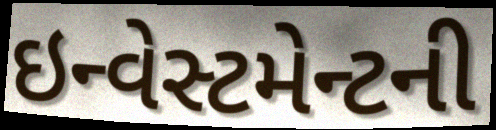
ઇન્વેસ્ટમેન્ટની